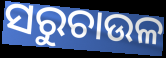
ସରୁଚାଉଳ